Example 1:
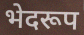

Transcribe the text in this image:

भेदरूप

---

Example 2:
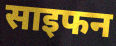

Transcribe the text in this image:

साइफन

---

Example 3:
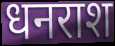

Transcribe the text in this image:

धनराश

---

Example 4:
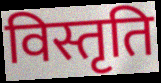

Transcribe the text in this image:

विस्तृति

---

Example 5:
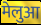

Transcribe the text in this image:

मेलुआ